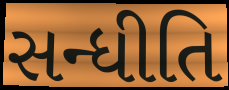
સન્ધીતિ